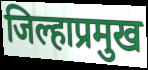
जिल्हाप्रमुख